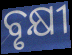
ବୃକ୍ଷୀ